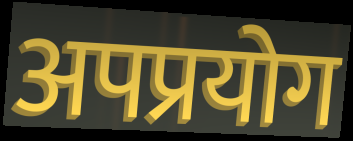
अपप्रयोग